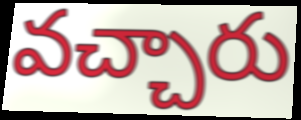
వచ్చారు